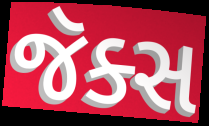
જૅક્સ